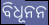
ବିଧୂନନ